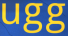
ugg